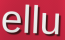
ellu